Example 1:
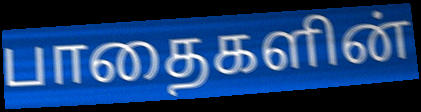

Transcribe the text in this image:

பாதைகளின்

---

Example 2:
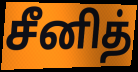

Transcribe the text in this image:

சீனித்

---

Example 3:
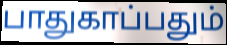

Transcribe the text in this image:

பாதுகாப்பதும்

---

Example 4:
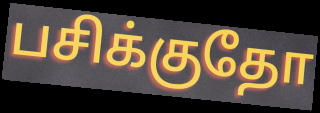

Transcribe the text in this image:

பசிக்குதோ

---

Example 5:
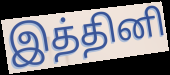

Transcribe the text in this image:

இத்தினி